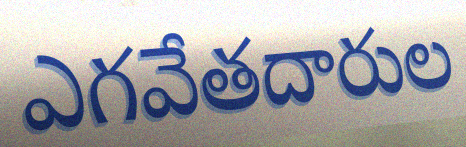
ఎగవేతదారుల